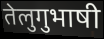
तेलुगुभाषी